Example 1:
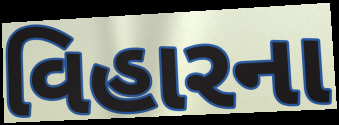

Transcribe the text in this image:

વિહારના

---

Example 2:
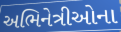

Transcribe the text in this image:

અભિનેત્રીઓના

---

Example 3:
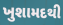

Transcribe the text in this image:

ખુશામદથી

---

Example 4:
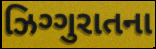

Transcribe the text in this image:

ઝિગ્ગુરાતના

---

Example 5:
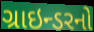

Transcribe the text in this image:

ગ્રાઇન્ડરનો